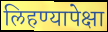
लिहण्यापेक्षा